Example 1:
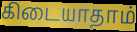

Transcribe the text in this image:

கிடையாதாம்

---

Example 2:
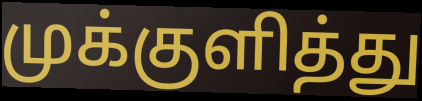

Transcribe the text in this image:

முக்குளித்து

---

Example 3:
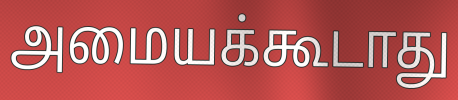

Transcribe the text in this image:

அமையக்கூடாது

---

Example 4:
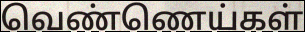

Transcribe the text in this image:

வெண்ணெய்கள்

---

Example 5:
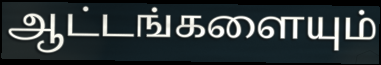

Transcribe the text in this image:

ஆட்டங்களையும்